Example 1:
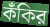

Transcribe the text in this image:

কঁকির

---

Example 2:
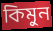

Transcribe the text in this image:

কিমুন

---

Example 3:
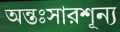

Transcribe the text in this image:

অন্তঃসারশূন্য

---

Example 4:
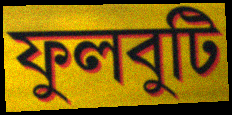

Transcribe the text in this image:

ফুলবুটি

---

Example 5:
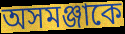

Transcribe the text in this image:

অসমঞ্জাকে